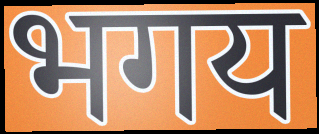
भगय